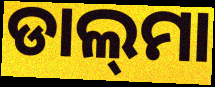
ଡାଲ୍‍ମା